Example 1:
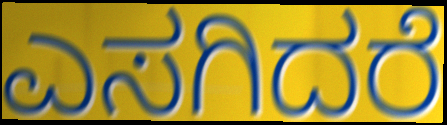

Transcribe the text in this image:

ಎಸಗಿದರೆ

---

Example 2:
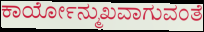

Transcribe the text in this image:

ಕಾರ್ಯೋನ್ಮುಖವಾಗುವಂತೆ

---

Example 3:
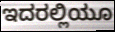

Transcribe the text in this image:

ಇದರಲ್ಲಿಯೂ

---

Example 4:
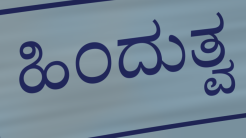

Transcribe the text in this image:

ಹಿಂದುತ್ವ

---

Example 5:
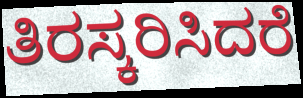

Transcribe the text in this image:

ತಿರಸ್ಕರಿಸಿದರೆ